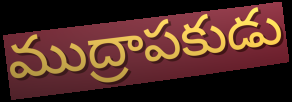
ముద్రాపకుడు